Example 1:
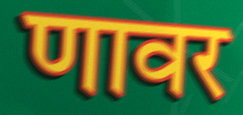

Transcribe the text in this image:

णावर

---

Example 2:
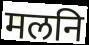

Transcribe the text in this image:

मलनि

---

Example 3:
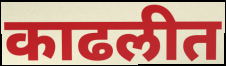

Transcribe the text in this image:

काढलीत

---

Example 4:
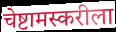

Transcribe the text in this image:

चेष्टामस्करीला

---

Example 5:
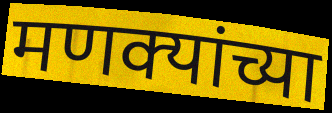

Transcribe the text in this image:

मणक्यांच्या